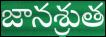
జానశ్రుత